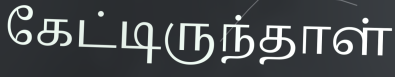
கேட்டிருந்தாள்